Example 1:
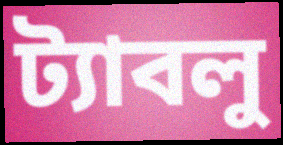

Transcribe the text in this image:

ট্যাবলু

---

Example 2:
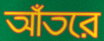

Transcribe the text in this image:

আঁতরে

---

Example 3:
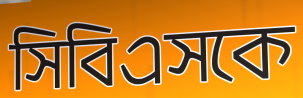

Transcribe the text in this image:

সিবিএসকে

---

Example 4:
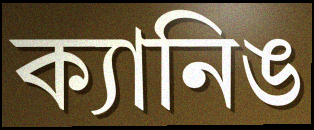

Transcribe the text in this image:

ক্যানিঙ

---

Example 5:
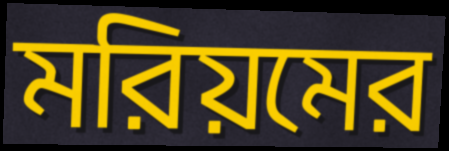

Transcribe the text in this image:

মরিয়মের